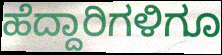
ಹೆದ್ದಾರಿಗಳಿಗೂ